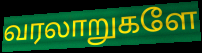
வரலாறுகளே